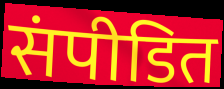
संपीडित